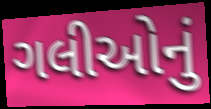
ગલીઓનું